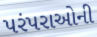
પરંપરાઓની